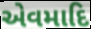
એવમાદિ